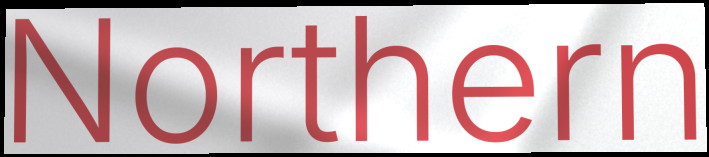
Northern